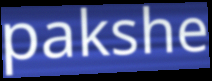
pakshe